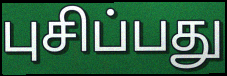
புசிப்பது